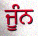
ਜੂੰਨ